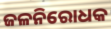
ଜଳନିରୋଧକ